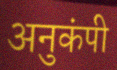
अनुकंपी